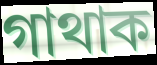
গাথাক